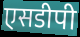
एसडीपी